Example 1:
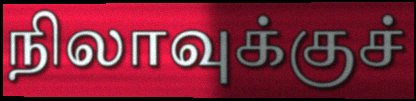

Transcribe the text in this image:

நிலாவுக்குச்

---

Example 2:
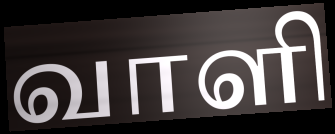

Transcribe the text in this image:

வாளி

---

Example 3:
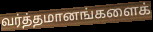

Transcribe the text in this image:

வர்த்தமானங்களைக்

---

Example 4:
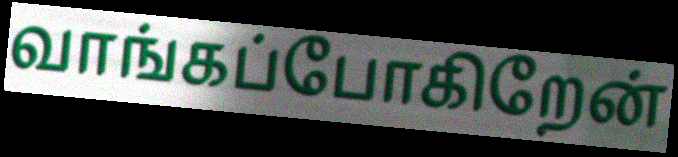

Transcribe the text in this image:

வாங்கப்போகிறேன்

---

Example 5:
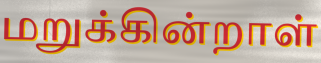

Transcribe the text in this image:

மறுக்கின்றாள்